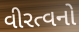
વીરત્વનો